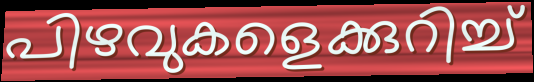
പിഴവുകളെക്കുറിച്ച്